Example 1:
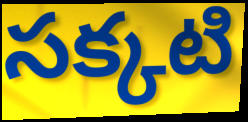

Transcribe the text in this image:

సక్కటి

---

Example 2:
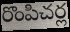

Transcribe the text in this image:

రొంపిచర్ల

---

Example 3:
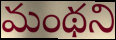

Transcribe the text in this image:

మంథని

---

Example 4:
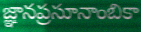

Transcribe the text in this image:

జ్ఞానప్రసూనాంబికా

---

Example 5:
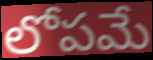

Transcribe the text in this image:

లోపమే